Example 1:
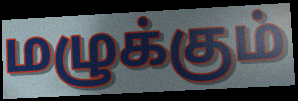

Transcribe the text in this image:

மழுக்கும்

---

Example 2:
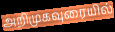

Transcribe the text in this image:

அறிமுகவுரையில்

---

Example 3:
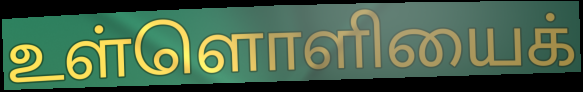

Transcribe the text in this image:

உள்ளொளியைக்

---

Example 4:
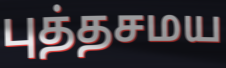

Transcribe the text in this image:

புத்தசமய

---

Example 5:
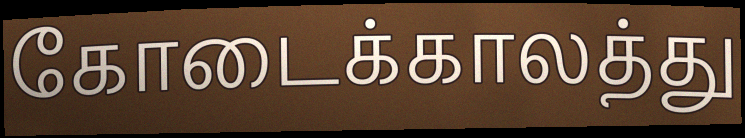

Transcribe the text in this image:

கோடைக்காலத்து